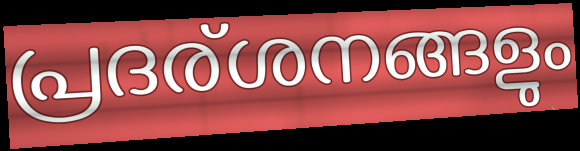
പ്രദര്ശനങ്ങളും